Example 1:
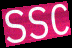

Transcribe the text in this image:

SSC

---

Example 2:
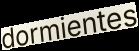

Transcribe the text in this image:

dormientes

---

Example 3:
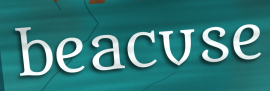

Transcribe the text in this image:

beacuse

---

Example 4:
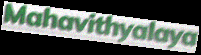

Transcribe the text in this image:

Mahavithyalaya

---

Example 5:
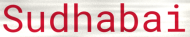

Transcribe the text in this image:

Sudhabai